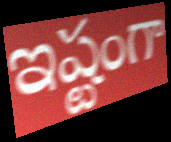
ఇష్టంగా